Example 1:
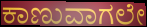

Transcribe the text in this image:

ಕಾಣುವಾಗಲೇ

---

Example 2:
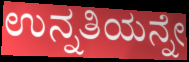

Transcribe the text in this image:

ಉನ್ನತಿಯನ್ನೇ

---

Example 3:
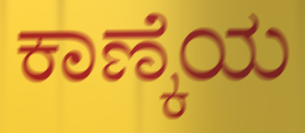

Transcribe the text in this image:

ಕಾಣ್ಕೆಯ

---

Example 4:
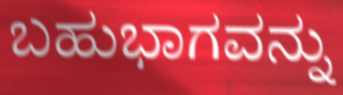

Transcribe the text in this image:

ಬಹುಭಾಗವನ್ನು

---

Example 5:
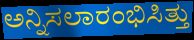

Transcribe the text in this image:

ಅನ್ನಿಸಲಾರಂಭಿಸಿತ್ತು